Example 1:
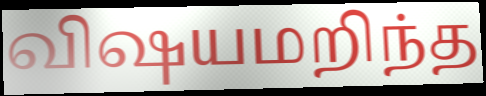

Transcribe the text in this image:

விஷயமறிந்த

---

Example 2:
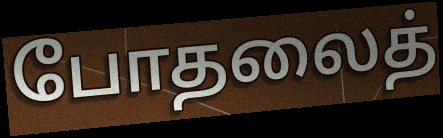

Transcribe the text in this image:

போதலைத்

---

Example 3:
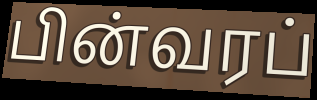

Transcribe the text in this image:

பின்வரப்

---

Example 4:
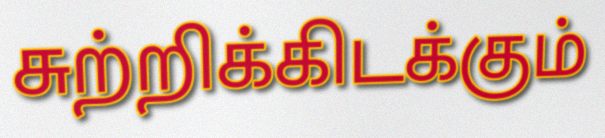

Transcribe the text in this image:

சுற்றிக்கிடக்கும்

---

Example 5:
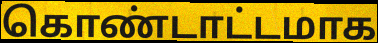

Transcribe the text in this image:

கொண்டாட்டமாக